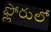
ఫ్లోరులో